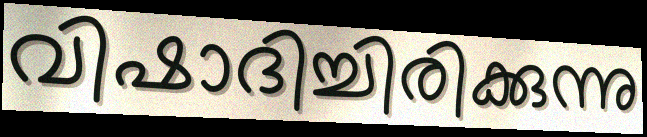
വിഷാദിച്ചിരിക്കുന്നു